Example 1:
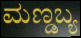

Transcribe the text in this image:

ಮಣ್ಡಬ್ಯ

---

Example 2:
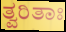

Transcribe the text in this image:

ತ್ವರಿತಾಃ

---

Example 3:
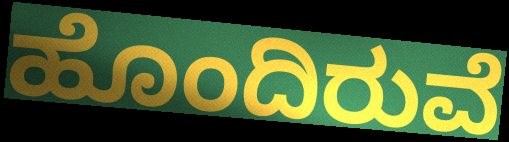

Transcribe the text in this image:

ಹೊಂದಿರುವೆ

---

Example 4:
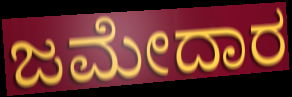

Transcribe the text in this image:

ಜಮೇದಾರ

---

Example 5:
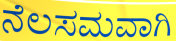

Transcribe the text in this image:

ನೆಲಸಮವಾಗಿ